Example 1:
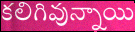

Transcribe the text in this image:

కలిగివున్నాయి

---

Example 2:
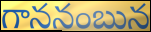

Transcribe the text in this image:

గాననంబున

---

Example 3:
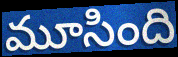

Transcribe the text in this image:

మూసింది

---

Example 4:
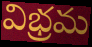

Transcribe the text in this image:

విభ్రమ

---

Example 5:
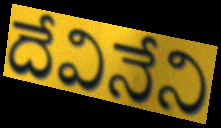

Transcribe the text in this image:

దేవినేని